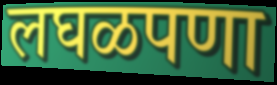
लघळपणा